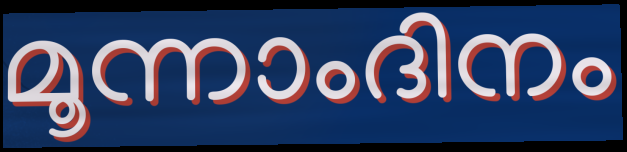
മൂന്നാംദിനം